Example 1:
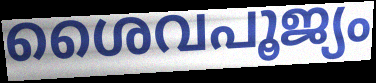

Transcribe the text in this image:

ശൈവപൂജ്യം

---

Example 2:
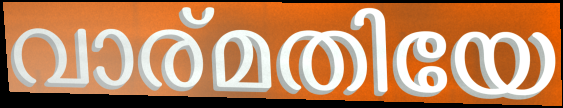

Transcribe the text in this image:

വാര്മതിയേ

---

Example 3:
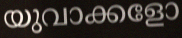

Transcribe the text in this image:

യുവാക്കളോ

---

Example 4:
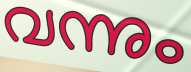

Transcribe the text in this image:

വന്നും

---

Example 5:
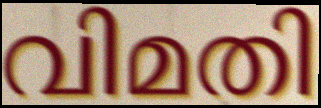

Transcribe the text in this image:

വിമതി